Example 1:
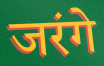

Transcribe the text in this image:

जरंगे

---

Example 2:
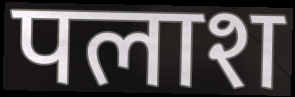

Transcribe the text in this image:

पलाश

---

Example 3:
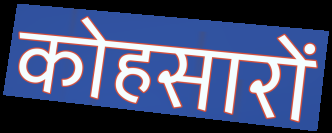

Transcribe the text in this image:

कोहसारों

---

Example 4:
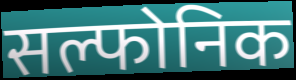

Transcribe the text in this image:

सल्फोनिक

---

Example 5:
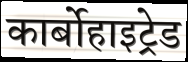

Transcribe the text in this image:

कार्बोहाइट्रेड